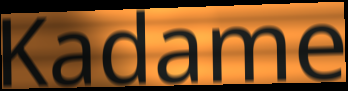
Kadame